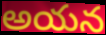
అయన